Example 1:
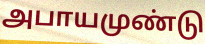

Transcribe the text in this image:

அபாயமுண்டு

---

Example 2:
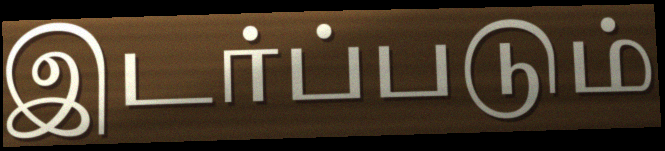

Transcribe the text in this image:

இடர்ப்படும்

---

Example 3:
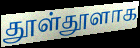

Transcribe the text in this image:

தூள்தூளாக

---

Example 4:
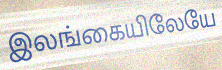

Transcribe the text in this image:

இலங்கையிலேயே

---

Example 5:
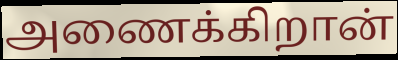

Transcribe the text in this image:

அணைக்கிறான்